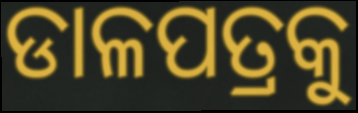
ଡାଳପତ୍ରକୁ